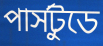
পার্সটুডে